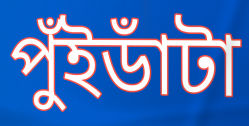
পুঁইডাঁটা